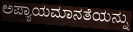
ಅಪ್ಯಾಯಮಾನತೆಯನ್ನು